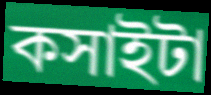
কসাইটা